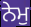
ਨੇਮੁ